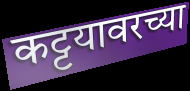
कट्टयावरच्या